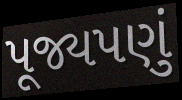
પૂજ્યપણું